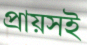
প্রায়সই